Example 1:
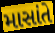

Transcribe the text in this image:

માસાંતે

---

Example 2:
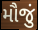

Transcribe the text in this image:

મૌજું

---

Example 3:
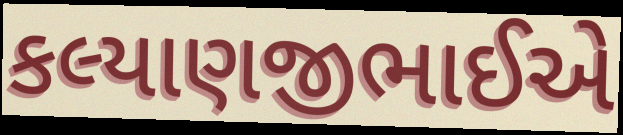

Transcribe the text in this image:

કલ્યાણજીભાઈએ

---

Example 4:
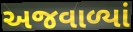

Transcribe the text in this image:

અજવાળ્યાં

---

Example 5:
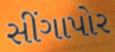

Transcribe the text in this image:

સીંગાપોર